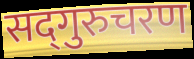
सद्‍गुरुचरण